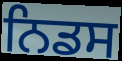
ਨਿਡਸ